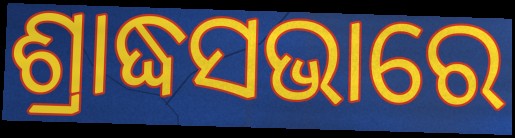
ଶ୍ରାଦ୍ଧସଭାରେ